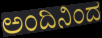
ಅಂದಿನಿಂದ